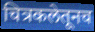
चित्रकलेतूनच